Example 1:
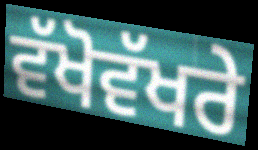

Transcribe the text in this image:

ਵੱਖੋਵੱਖਰੇ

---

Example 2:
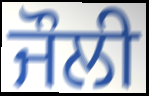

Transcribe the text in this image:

ਜੌਲੀ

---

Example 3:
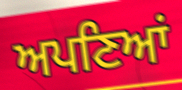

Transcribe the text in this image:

ਅਪਣਿਆਂ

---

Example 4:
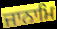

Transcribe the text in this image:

ਜਾਨਾਮਿ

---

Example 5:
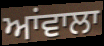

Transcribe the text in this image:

ਆਂਵਾਲਾ